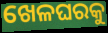
ଖେଳଘରକୁ